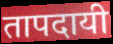
तापदायी